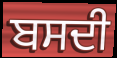
ਬਸਦੀ